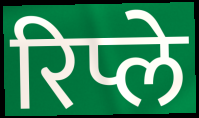
रिप्ले